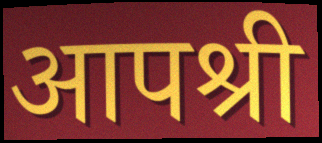
आपश्री